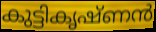
കുട്ടികൃഷ്ണൻ